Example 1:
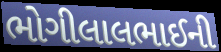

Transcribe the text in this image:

ભોગીલાલભાઈની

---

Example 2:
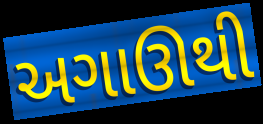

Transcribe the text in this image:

અગાઊથી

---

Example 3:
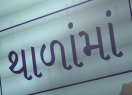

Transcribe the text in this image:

થાળાંમાં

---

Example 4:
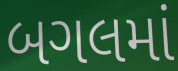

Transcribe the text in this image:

બગલમાં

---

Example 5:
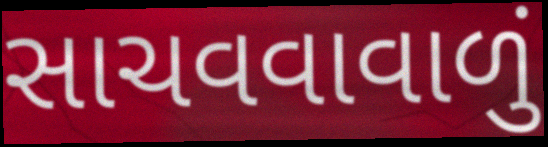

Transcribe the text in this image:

સાચવવાવાળું